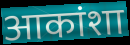
आकांशा